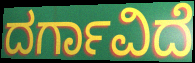
ದರ್ಗಾವಿದೆ